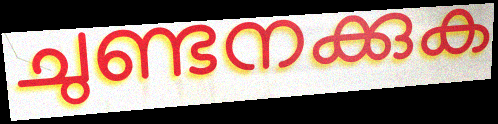
ചുണ്ടനക്കുക